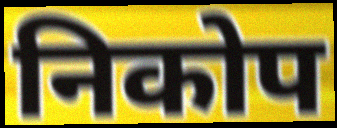
निकोप